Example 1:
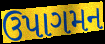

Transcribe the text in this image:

ઉપાગમન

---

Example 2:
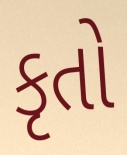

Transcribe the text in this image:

કૃતો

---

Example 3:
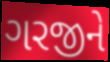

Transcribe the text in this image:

ગરજીને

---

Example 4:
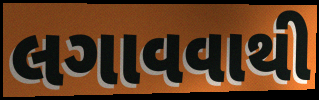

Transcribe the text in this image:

લગાવવાથી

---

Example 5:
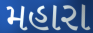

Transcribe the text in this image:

મહારા